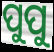
ପୁପୁ